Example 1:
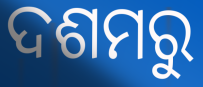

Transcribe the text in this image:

ଦଶମରୁ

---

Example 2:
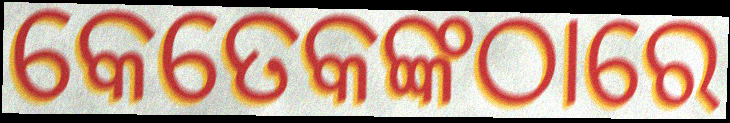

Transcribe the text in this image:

କେତେକଙ୍କଠାରେ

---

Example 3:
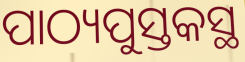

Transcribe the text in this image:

ପାଠ୍ୟପୁସ୍ତକସ୍ଥ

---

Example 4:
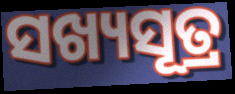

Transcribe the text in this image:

ସଖ୍ୟସୂତ୍ର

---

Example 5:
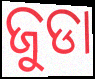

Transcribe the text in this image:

ଜୁଡା